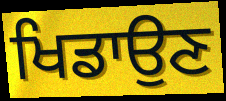
ਖਿਡਾਉਣ